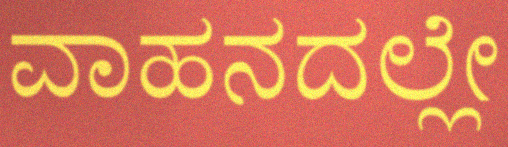
ವಾಹನದಲ್ಲೇ